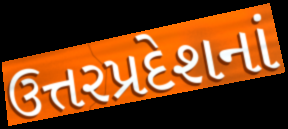
ઉત્તરપ્રદેશનાં